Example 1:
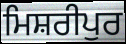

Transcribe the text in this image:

ਮਿਸ਼ਰੀਪੁਰ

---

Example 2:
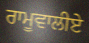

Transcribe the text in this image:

ਰਾਮੂਵਾਲੀਏ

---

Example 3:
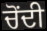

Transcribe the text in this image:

ਚੋੰਦੀ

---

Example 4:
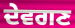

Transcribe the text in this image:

ਦੇਵਗਣ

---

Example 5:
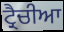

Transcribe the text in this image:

ਟ੍ਰੈਚੀਆ